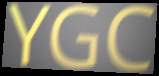
YGC